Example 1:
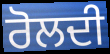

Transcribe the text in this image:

ਰੋਲਦੀ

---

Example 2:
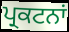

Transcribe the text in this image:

ਪ੍ਰਕਟਨਾਂ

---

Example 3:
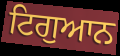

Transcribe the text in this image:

ਟਿਗੁਆਨ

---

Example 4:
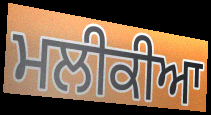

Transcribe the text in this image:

ਮਲੀਕੀਆ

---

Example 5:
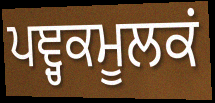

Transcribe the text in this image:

ਪਞ੍ਚਕਮੂਲਕਂ